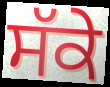
ਸੱਕੇ